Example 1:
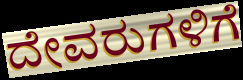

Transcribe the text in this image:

ದೇವರುಗಳಿಗೆ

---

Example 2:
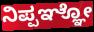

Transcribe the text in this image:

ನಿಪ್ಪಞ್ಞೋ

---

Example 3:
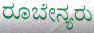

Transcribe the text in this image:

ರೂಬೇನ್ಯರು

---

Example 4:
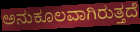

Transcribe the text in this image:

ಅನುಕೂಲವಾಗಿರುತ್ತದೆ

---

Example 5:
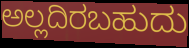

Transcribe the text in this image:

ಅಲ್ಲದಿರಬಹುದು